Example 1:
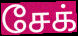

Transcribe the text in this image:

சேக்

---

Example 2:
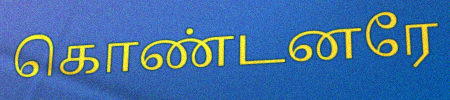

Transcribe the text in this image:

கொண்டனரே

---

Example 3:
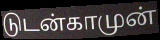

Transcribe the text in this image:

டுடன்காமுன்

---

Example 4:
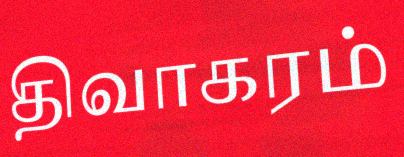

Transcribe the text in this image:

திவாகரம்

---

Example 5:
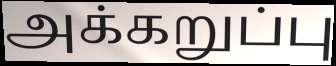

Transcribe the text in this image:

அக்கறுப்பு